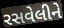
રસવેલીને